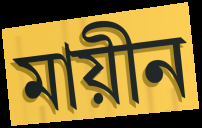
মায়ীন